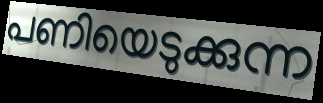
പണിയെടുക്കുന്ന